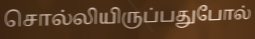
சொல்லியிருப்பதுபோல்